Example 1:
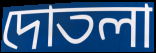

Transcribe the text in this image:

দোতলা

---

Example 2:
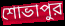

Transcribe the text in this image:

শোভাপুর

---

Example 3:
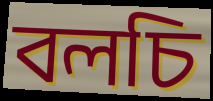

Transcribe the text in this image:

বলচি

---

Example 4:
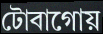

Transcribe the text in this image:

টোবাগোয়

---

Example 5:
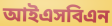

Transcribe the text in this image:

আইএসবিএন